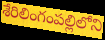
శేరిలింగంపల్లిలోని